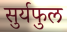
सुर्यफुल